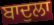
ਬਾਦੁਲਾ